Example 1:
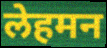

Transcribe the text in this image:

लेहमन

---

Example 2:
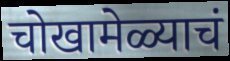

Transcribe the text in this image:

चोखामेळ्याचं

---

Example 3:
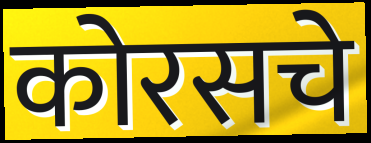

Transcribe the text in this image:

कोरसचे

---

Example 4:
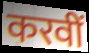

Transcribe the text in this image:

करवीं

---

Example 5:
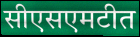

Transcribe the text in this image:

सीएसएमटीत